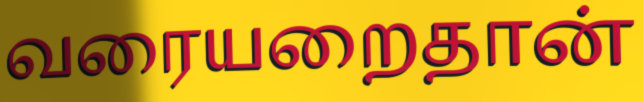
வரையறைதான்